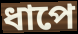
ধাপে